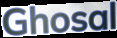
Ghosal